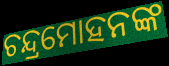
ଚନ୍ଦ୍ରମୋହନଙ୍କ